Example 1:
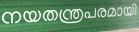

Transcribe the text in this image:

നയതന്ത്രപരമായി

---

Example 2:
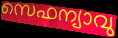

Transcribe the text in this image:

സെഫന്യാവു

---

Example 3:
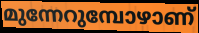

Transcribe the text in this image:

മുന്നേറുമ്പോഴാണ്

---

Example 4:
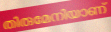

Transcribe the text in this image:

തിരുമേനിയാണ്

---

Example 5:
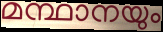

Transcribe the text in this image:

മന്ഥാനയും